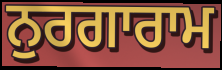
ਨੁਰਗਾਰਾਮ